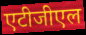
एटीजीएल